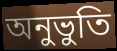
অনুভুতি